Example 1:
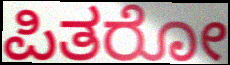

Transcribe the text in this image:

ಪಿತರೋ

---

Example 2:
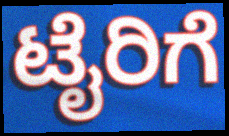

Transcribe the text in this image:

ಟೈರಿಗೆ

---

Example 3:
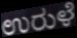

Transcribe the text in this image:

ಉರುಳೆ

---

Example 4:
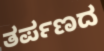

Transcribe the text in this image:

ತರ್ಪಣದ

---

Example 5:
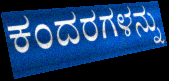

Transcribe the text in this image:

ಕಂದರಗಳನ್ನು